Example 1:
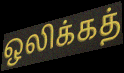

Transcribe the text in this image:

ஒலிக்கத்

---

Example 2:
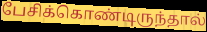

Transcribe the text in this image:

பேசிக்கொண்டிருந்தால்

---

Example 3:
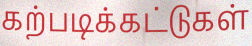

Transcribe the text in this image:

கற்படிக்கட்டுகள்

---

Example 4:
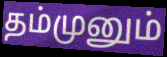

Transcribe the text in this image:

தம்முனும்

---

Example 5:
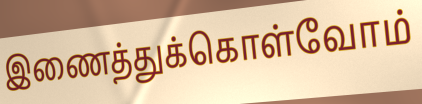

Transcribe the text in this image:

இணைத்துக்கொள்வோம்